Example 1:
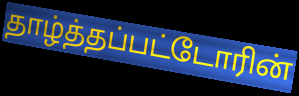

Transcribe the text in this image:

தாழ்த்தப்பட்டோரின்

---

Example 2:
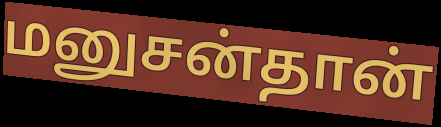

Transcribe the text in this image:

மனுசன்தான்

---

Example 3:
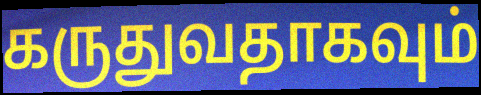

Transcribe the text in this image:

கருதுவதாகவும்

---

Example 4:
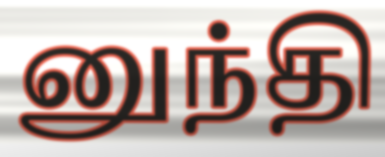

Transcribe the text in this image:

னுந்தி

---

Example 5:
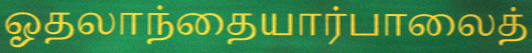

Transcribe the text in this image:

ஓதலாந்தையார்பாலைத்